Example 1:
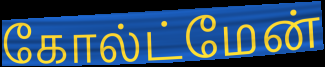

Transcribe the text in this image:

கோல்ட்மேன்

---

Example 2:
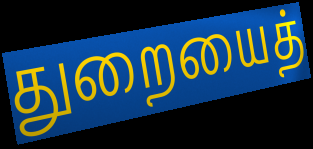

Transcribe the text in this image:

துறையைத்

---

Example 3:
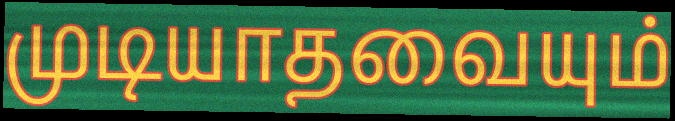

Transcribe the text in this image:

முடியாதவையும்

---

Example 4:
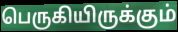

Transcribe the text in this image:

பெருகியிருக்கும்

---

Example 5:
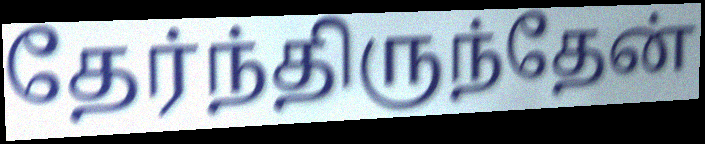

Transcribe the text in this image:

தேர்ந்திருந்தேன்